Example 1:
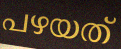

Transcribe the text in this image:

പഴയത്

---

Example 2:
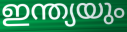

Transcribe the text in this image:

ഇന്ത്യയും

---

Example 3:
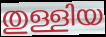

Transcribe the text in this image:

തുള്ളിയ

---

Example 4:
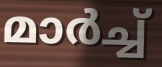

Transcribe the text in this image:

മാർച്ച്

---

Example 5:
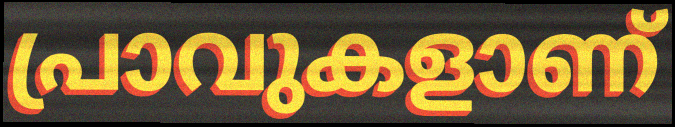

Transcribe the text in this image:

പ്രാവുകളാണ്